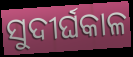
ସୁଦୀର୍ଘକାଳ